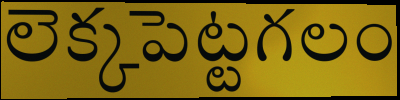
లెక్కపెట్టగలం